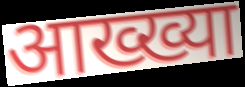
आख्ख्या